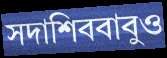
সদাশিববাবুও